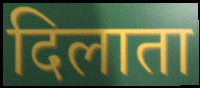
दिलाता